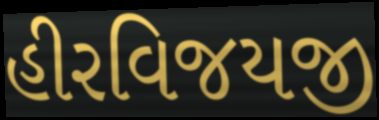
હીરવિજયજી